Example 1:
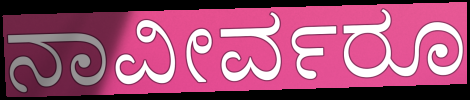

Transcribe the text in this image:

ನಾವೀರ್ವರೂ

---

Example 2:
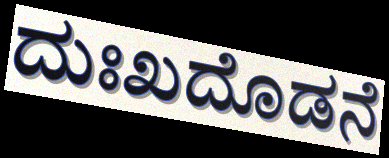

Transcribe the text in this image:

ದುಃಖದೊಡನೆ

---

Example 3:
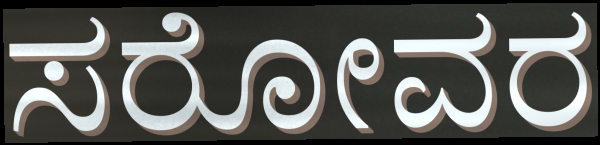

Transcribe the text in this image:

ಸರೋವರ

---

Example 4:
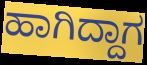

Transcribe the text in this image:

ಹಾಗಿದ್ದಾಗ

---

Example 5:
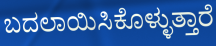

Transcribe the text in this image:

ಬದಲಾಯಿಸಿಕೊಳ್ಳುತ್ತಾರೆ